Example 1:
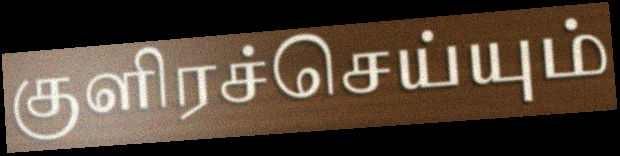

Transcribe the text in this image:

குளிரச்செய்யும்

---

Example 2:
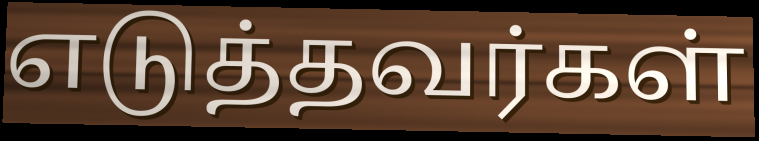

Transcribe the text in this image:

எடுத்தவர்கள்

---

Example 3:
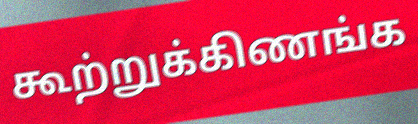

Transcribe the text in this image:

கூற்றுக்கிணங்க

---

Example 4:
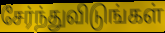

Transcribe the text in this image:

சேர்ந்துவிடுங்கள்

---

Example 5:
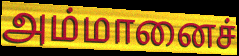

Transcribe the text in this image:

அம்மானைச்